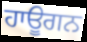
ਹਾਊਗਨ